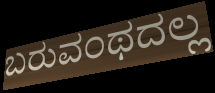
ಬರುವಂಥದಲ್ಲ